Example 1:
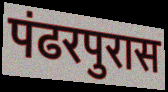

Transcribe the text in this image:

पंढरपुरास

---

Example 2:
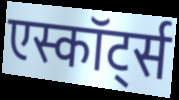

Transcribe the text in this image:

एस्कॉर्ट्स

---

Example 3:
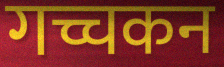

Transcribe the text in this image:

गच्चकन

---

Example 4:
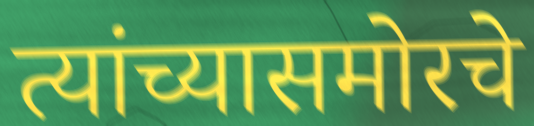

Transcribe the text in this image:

त्यांच्यासमोरचे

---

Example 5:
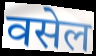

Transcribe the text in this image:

वसेल